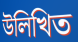
উলিখিত